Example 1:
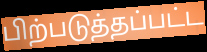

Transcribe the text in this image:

பிற்படுத்தப்பட்ட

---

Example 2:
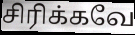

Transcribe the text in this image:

சிரிக்கவே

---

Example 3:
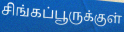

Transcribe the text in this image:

சிங்கப்பூருக்குள்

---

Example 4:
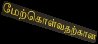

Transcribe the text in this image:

மேற்கொள்வதற்கான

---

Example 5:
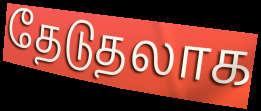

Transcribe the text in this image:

தேடுதலாக